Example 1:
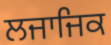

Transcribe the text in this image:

ਲਜਾਜਿਕ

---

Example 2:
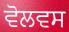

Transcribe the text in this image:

ਵੋਲਵਸ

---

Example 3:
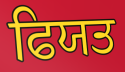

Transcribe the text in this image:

ਫਿਯਤ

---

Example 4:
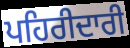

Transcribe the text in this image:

ਪਹਿਰੀਦਾਰੀ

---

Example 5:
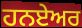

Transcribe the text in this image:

ਹਨਏਅਰ